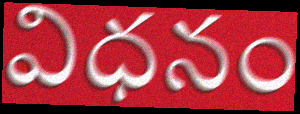
విధనం